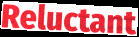
Reluctant